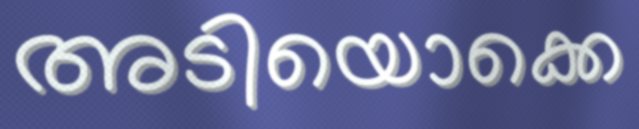
അടിയൊക്കെ